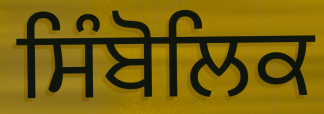
ਸਿੰਬੋਲਿਕ